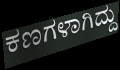
ಕಣಗಳಾಗಿದ್ದು